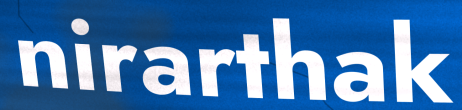
nirarthak